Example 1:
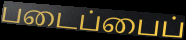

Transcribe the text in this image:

படைப்பைப்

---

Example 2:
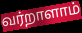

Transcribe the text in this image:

வர்றாளாம்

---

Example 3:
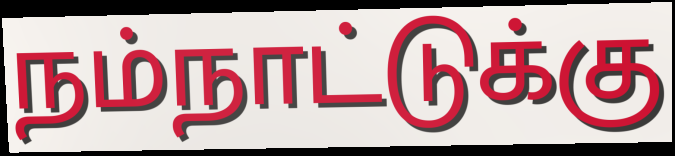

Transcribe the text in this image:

நம்நாட்டுக்கு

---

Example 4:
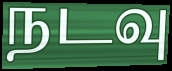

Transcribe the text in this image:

நடவு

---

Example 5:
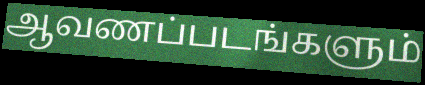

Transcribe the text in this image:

ஆவணப்படங்களும்